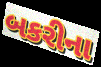
બકરીના